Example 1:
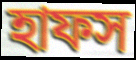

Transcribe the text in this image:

হাফস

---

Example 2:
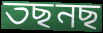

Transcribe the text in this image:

তছনছ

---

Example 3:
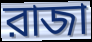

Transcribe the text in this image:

রাজা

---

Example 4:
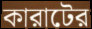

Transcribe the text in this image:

কারাটের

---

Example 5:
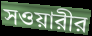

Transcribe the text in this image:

সওয়ারীর